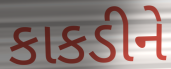
કાકડીને